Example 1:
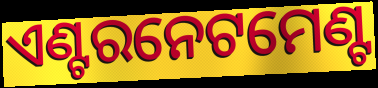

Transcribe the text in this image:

ଏଣ୍ଟରନେଟମେଣ୍ଟ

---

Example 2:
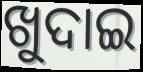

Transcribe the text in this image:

ଖୁଦାଇ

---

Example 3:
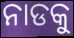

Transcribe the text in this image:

ନାଡକୁ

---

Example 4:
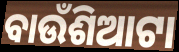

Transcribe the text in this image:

ବାଉଁଶିଆଟା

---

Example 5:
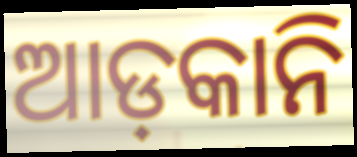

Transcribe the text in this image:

ଆଡ଼କାନି